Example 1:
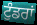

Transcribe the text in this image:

ਟੁੰਡਰਾਂ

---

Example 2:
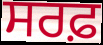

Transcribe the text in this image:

ਸਰਫ਼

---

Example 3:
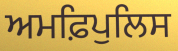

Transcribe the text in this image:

ਅਮਫ਼ਿਪੁਲਿਸ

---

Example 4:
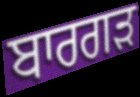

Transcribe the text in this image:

ਬਾਰਗੜ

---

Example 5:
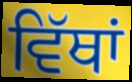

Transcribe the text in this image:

ਵਿੱਥਾਂ